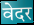
वेदर